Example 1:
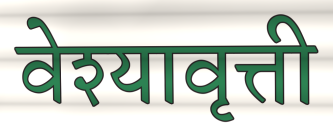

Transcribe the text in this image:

वेश्यावृत्ती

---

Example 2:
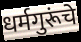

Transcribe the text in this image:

धर्मगुरूंचे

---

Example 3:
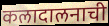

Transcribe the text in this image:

कलादालनाची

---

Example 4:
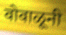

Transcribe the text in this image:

वोवाळूनी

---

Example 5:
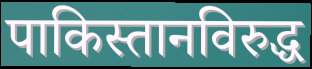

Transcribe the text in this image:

पाकिस्तानविरुद्ध